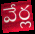
వేర్ల